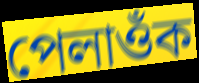
পেলাওঁক